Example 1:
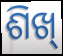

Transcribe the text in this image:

ଶିଖ୍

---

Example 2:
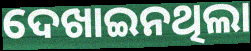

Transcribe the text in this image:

ଦେଖାଇନଥିଲା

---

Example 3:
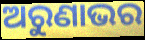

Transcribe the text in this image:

ଅରୁଣାଭର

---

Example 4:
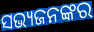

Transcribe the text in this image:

ସଭ୍ୟଜନଙ୍କର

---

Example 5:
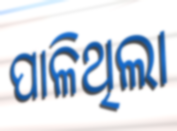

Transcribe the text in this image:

ପାଳିଥିଲା